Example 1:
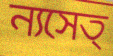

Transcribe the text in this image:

ন্যসেত্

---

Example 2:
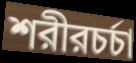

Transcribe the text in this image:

শরীরচর্চা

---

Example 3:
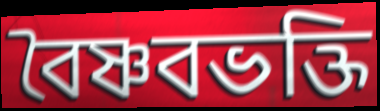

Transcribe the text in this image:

বৈষ্ণবভক্তি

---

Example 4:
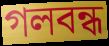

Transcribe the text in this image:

গলবন্ধ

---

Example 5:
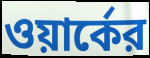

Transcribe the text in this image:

ওয়ার্কের